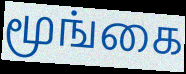
மூங்கை